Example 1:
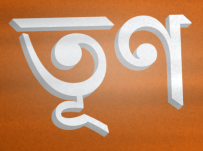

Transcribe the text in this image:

তূণ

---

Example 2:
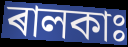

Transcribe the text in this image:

ৰালকাঃ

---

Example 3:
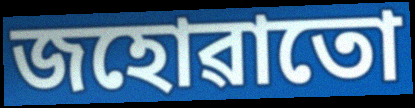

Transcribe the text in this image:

জহোৱাতো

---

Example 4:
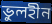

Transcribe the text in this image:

ভুলহীন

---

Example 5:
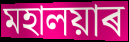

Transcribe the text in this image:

মহালয়াৰ